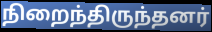
நிறைந்திருந்தனர்